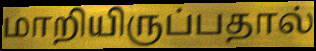
மாறியிருப்பதால்